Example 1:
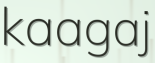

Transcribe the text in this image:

kaagaj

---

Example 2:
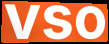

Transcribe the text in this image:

vso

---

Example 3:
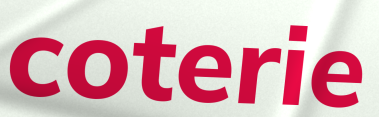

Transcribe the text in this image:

coterie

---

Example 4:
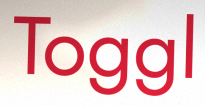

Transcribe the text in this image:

Toggl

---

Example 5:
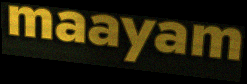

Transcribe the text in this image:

maayam